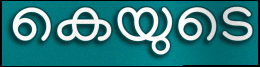
കെയുടെ